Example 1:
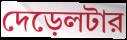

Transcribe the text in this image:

দেড়েলটার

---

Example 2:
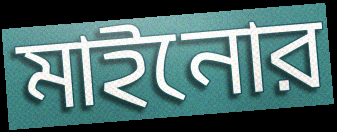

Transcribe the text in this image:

মাইনোর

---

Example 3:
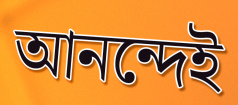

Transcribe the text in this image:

আনন্দেই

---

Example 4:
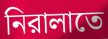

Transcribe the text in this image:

নিরালাতে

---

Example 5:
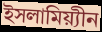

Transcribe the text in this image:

ইসলামিয়্যীন